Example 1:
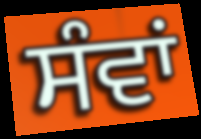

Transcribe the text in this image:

ਸੰਵਾਂ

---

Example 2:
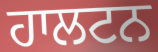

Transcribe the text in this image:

ਹਾਲਟਨ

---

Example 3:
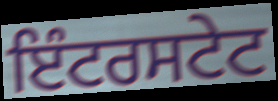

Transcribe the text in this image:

ਇੰਟਰਸਟੇਟ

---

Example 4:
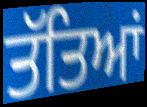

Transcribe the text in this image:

ਤੱਤਿਆਂ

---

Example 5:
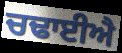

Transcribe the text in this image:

ਚਢਾਈਐ